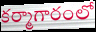
కర్మాగారంలో